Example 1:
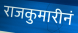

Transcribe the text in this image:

राजकुमारीनं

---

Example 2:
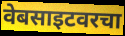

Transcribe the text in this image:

वेबसाइटवरचा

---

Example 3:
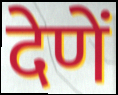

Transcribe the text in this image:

देणें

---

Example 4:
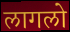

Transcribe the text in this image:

लागलो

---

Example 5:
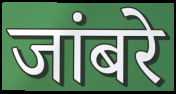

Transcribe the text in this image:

जांबरे